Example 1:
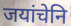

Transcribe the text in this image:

जयांचेनि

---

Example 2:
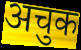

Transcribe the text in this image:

अचुक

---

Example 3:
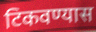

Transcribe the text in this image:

टिकवण्यास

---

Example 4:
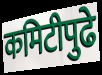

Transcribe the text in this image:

कमिटीपुढे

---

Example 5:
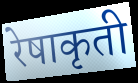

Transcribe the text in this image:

रेषाकृती